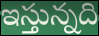
ఇస్తున్నది